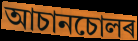
আচানচোলৰ